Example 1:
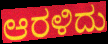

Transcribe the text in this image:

ಆರಳಿದು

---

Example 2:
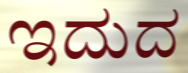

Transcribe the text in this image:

ಇದುದ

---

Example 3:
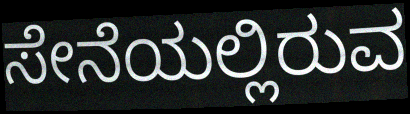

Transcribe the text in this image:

ಸೇನೆಯಲ್ಲಿರುವ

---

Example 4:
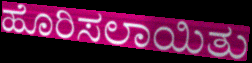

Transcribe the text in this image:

ಹೊರಿಸಲಾಯಿತು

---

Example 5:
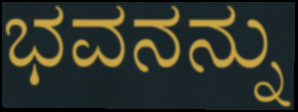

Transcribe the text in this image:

ಭವನನ್ನು